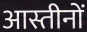
आस्तीनों